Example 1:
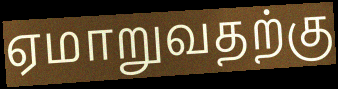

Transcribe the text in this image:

ஏமாறுவதற்கு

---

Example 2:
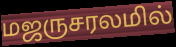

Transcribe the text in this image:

மஜருசரலமில்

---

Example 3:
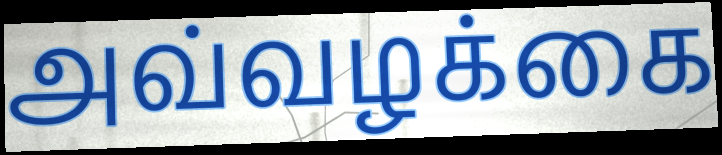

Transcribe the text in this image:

அவ்வழக்கை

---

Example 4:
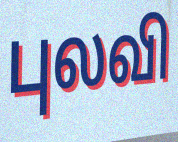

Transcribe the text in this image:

புலவி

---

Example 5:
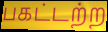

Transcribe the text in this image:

பகட்டற்ற